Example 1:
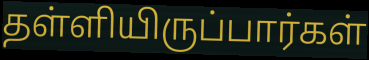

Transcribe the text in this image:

தள்ளியிருப்பார்கள்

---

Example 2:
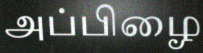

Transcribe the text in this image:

அப்பிழை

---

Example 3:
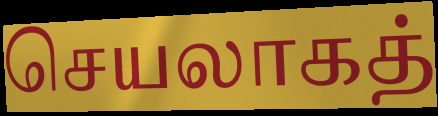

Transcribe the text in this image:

செயலாகத்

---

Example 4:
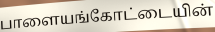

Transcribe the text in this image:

பாளையங்கோட்டையின்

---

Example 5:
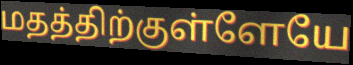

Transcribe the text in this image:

மதத்திற்குள்ளேயே